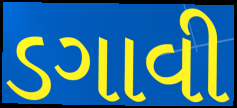
ડગાવી